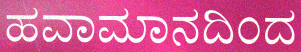
ಹವಾಮಾನದಿಂದ